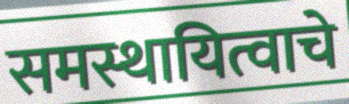
समस्थायित्वाचे